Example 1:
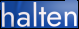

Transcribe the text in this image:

halten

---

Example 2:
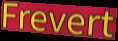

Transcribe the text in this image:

Frevert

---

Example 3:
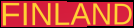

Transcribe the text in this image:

FINLAND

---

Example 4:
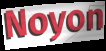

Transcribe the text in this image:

Noyon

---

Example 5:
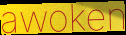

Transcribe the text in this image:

awoken